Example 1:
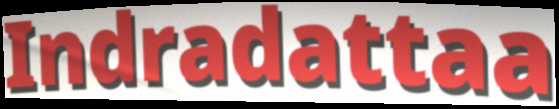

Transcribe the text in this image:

Indradattaa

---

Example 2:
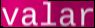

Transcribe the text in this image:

valar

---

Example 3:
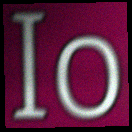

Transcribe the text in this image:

Io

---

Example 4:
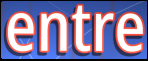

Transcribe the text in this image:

entre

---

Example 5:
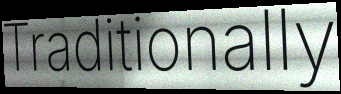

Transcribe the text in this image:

Traditionally